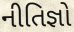
નીતિજ્ઞો